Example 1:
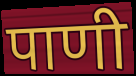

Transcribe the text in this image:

पाणी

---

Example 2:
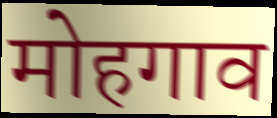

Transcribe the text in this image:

मोहगाव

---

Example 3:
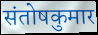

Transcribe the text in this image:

संतोषकुमार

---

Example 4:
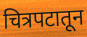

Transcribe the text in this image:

चित्रपटातून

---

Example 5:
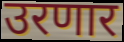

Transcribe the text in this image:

उरणार